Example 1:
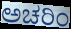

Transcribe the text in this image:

ಅಚರಿಂ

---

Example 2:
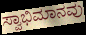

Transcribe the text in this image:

ಸ್ವಾಭಿಮಾನವು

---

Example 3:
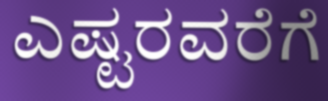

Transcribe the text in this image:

ಎಷ್ಟರವರೆಗೆ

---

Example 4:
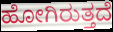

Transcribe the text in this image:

ಹೋಗಿರುತ್ತದೆ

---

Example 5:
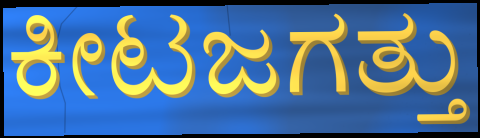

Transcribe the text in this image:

ಕೀಟಜಗತ್ತು